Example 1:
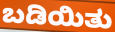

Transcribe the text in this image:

ಬಡಿಯಿತು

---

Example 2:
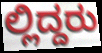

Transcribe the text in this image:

ಲ್ಲಿದ್ದರು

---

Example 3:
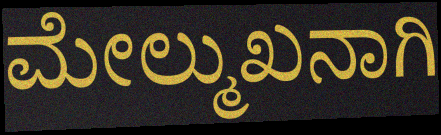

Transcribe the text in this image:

ಮೇಲ್ಮುಖನಾಗಿ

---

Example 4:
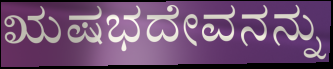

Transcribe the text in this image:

ಋಷಭದೇವನನ್ನು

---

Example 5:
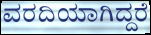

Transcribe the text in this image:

ವರದಿಯಾಗಿದ್ದರೆ